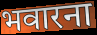
भवारना